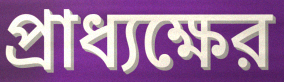
প্রাধ্যক্ষের